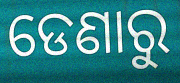
ଡେଣାରୁ